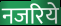
नजरिये